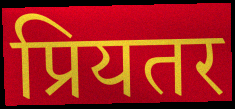
प्रियतर